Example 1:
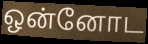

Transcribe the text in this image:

ஒன்னோட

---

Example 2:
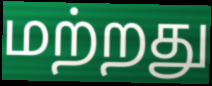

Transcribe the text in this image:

மற்றது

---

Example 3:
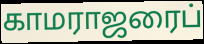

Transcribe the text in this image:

காமராஜரைப்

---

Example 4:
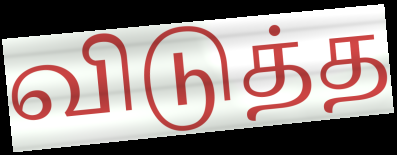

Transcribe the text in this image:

விடுத்த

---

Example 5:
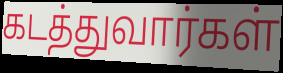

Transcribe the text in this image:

கடத்துவார்கள்